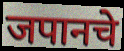
जपानचे